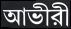
আভীরী